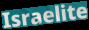
Israelite